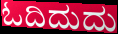
ಓದಿದುದು